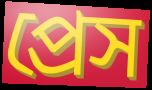
প্রেস